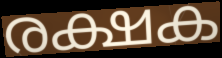
രക്ഷക